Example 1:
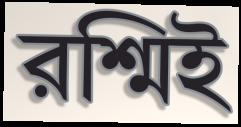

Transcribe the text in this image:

রশ্মিই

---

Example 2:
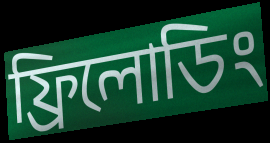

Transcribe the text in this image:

ফ্রিলোডিং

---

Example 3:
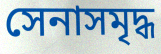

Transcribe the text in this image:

সেনাসমৃদ্ধ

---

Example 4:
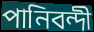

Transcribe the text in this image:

পানিবন্দী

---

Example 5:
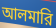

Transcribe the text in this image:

আলমারি